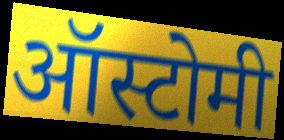
ऑस्टोमी